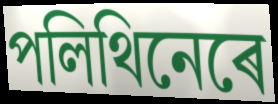
পলিথিনেৰে